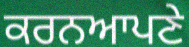
ਕਰਨਆਪਣੇ